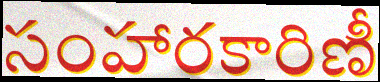
సంహారకారిణీ